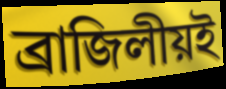
ব্রাজিলীয়ই